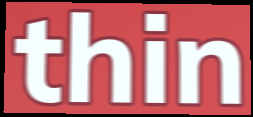
thin